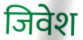
जिवेश